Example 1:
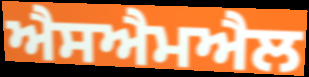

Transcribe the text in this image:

ਐਸਐਮਐਲ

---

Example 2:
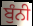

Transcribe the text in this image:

ਬੁੰਨੀ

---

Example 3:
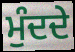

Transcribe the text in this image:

ਮੁੰਦਦੇ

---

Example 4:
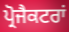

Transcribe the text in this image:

ਪ੍ਰੋਜੈਕਟਰਾਂ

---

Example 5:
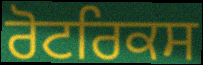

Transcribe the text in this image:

ਰੋਟਰਿਕਸ